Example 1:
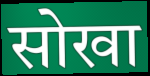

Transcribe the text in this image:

सोखा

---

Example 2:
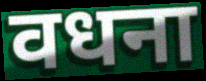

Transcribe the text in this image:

वधना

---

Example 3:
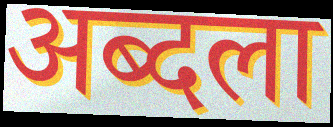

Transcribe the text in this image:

अब्दला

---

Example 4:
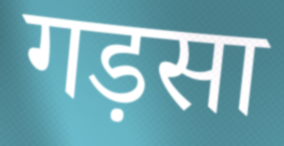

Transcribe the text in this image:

गड़सा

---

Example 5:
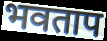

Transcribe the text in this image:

भवताप